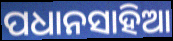
ପଧାନସାହିଆ